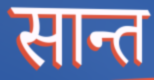
सान्त